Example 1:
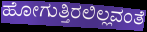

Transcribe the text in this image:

ಹೋಗುತ್ತಿರಲಿಲ್ಲವಂತೆ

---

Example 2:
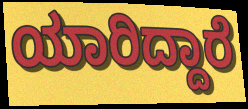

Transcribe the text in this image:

ಯಾರಿದ್ದಾರೆ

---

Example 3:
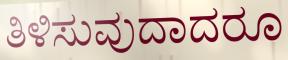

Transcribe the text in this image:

ತಿಳಿಸುವುದಾದರೂ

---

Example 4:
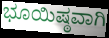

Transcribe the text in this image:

ಭೂಯಿಷ್ಠವಾಗಿ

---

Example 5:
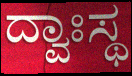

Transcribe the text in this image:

ದ್ವಾಃಸ್ಥ